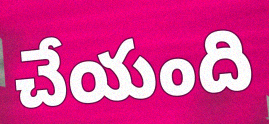
చేయంది